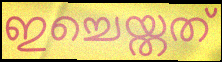
ഇച്ചെയ്തത്